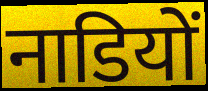
नाडियों